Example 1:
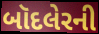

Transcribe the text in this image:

બૉદલેરની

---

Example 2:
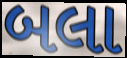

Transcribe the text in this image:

બલા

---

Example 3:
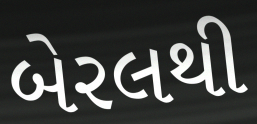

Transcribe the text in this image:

બેરલથી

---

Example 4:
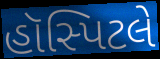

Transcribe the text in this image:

હૉસ્પિટલે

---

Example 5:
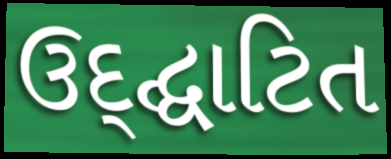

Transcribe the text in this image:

ઉદ્દ્ઘાટિત